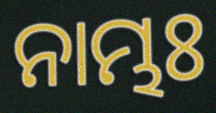
ନାମ୍ଭଃ